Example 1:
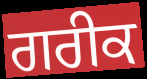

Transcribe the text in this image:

ਗਰੀਕ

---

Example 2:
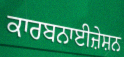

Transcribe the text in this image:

ਕਾਰਬਨਾਈਜ਼ੇਸ਼ਨ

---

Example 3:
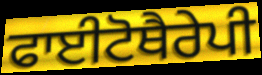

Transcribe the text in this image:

ਫਾਈਟੋਥੈਰੇਪੀ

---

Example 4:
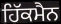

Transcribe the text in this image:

ਹਿੱਕਮੈਨ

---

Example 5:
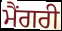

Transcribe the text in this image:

ਮੈਂਗਰੀ